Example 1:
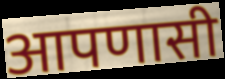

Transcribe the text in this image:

आपणासी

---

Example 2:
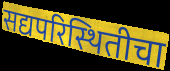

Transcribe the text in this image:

सद्यपरिस्थितीचा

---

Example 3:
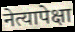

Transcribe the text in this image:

नेत्यापेक्षा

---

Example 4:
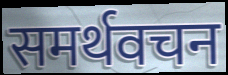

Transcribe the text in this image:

समर्थवचन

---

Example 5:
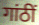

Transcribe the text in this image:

गांठीं